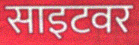
साइटवर